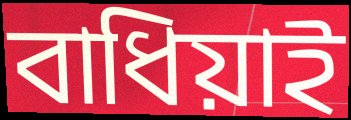
বাধিয়াই